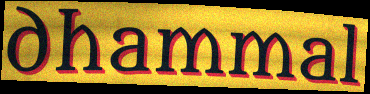
dhammal